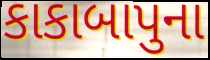
કાકાબાપુના